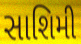
સાશિમી